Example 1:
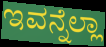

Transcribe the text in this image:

ಇವನ್ನೆಲ್ಲಾ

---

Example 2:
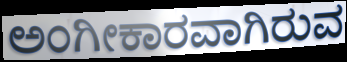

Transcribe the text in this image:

ಅಂಗೀಕಾರವಾಗಿರುವ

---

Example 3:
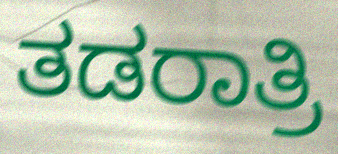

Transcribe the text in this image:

ತಡರಾತ್ರಿ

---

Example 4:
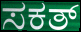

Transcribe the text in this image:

ಸಕತ್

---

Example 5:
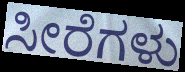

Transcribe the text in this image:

ಸೀರೆಗಳು